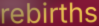
rebirths